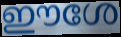
ഈശേ